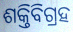
ଶକ୍ତିବିଗ୍ରହ